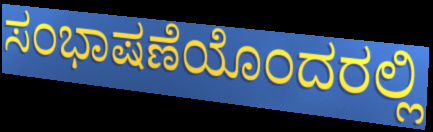
ಸಂಭಾಷಣೆಯೊಂದರಲ್ಲಿ